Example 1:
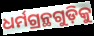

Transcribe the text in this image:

ଧର୍ମଗ୍ରନ୍ଥଗୁଡ଼ିକୁ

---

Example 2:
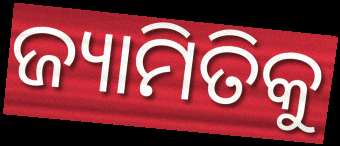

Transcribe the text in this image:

ଜ୍ୟାମିତିକୁ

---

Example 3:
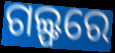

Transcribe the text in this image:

ଗଲ୍ଫରେ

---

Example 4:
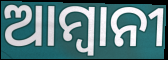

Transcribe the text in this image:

ଆମ୍ବାନୀ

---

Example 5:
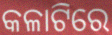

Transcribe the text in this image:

କଳାଟିରେ